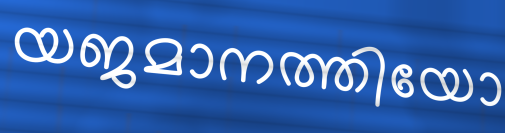
യജമാനത്തിയോ